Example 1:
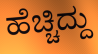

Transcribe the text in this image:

ಹೆಚ್ಚಿದ್ದು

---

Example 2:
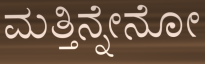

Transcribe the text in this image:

ಮತ್ತಿನ್ನೇನೋ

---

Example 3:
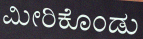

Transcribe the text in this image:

ಮೀರಿಕೊಂಡು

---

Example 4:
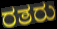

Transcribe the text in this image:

ರತರು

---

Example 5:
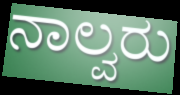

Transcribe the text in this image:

ನಾಲ್ವರು